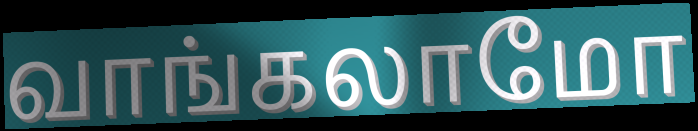
வாங்கலாமோ